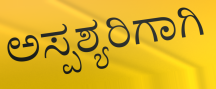
ಅಸ್ಪಶ್ಯರಿಗಾಗಿ